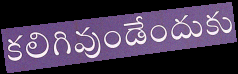
కలిగివుండేందుకు